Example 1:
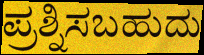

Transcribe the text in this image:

ಪ್ರಶ್ನಿಸಬಹುದು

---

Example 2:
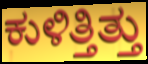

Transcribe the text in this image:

ಕುಳಿತ್ತಿತ್ತು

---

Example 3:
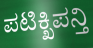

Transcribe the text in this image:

ಪಟಿಕ್ಖಿಪನ್ತಿ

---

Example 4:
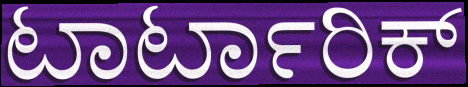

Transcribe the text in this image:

ಟಾರ್ಟಾರಿಕ್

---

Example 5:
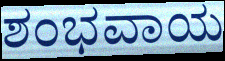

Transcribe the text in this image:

ಶಂಭವಾಯ